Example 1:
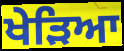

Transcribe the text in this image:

ਖੇੜਿਆ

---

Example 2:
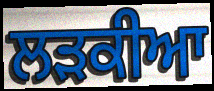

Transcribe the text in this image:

ਲੜਕੀਆ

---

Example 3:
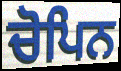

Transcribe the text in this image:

ਚੋਪਿਨ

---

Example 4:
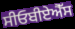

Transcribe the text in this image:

ਸੀਓਬੀਏਐੱਸ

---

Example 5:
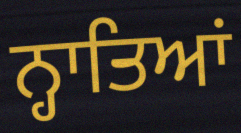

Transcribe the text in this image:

ਨ੍ਹਾਤਿਆਂ